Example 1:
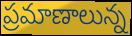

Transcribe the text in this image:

ప్రమాణాలున్న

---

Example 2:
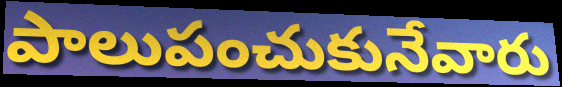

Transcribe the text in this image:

పాలుపంచుకునేవారు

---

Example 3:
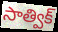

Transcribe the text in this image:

సాత్విక్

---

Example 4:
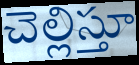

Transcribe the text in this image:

చెల్లిస్తూ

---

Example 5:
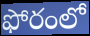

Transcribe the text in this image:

ఫోరంలో